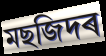
মছজিদৰ